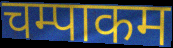
चम्पाकम